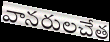
వానరులచేత